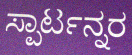
ಸ್ಪಾರ್ಟನ್ನರ